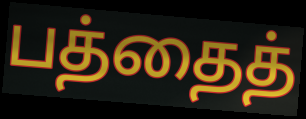
பத்தைத்